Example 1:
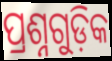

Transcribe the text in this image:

ପ୍ରଶ୍ନଗୁଡ଼ିକ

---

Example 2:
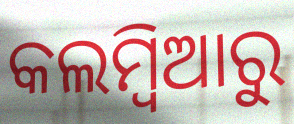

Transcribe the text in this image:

କଲମ୍ବିଆରୁ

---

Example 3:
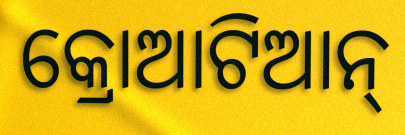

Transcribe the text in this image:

କ୍ରୋଆଟିଆନ୍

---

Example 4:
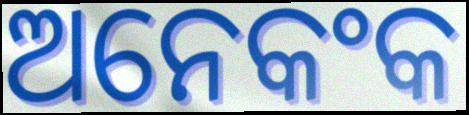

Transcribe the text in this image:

ଅନେକଂକ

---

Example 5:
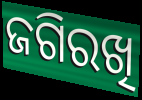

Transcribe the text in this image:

ଜଗିରଖି